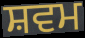
ਸ਼ਵਮ